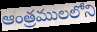
ఆంత్రములలోని